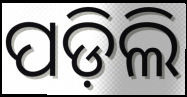
ପଡ଼ିଲି